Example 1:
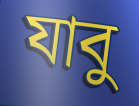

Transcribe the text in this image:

যাবু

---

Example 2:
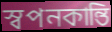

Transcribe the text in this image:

স্বপনকান্তি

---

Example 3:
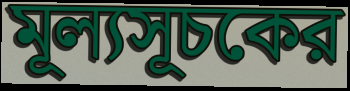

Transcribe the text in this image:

মূল্যসূচকের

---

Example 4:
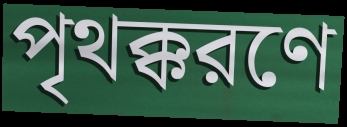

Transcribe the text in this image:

পৃথক্করণে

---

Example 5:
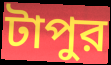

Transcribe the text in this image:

টাপুর